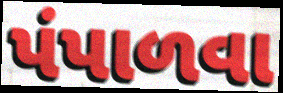
પંપાળવા